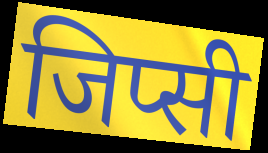
जिप्सी